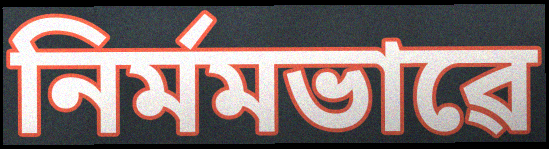
নিৰ্মমভাৱে